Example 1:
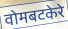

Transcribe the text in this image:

वोमबटकेरे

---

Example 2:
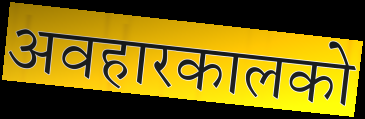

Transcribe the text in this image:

अवहारकालको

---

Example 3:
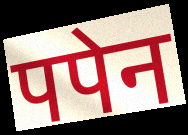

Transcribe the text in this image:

पपेन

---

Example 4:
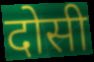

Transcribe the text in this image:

दोसी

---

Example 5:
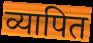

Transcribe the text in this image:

व्यापित